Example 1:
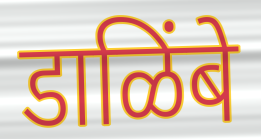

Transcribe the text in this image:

डाळिंबे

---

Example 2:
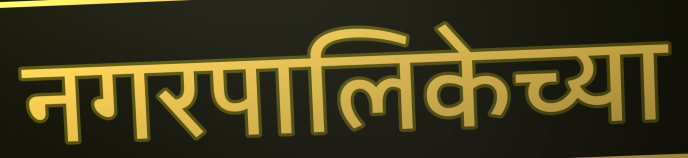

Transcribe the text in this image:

नगरपालिकेच्या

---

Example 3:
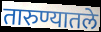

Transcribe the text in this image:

तारुण्यातले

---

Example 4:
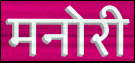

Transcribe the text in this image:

मनोरी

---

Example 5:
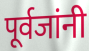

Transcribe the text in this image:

पूर्वजांनी